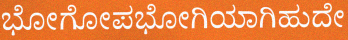
ಭೋಗೋಪಭೋಗಿಯಾಗಿಹುದೇ